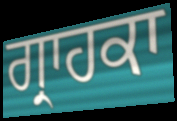
ਗ੍ਰਾਹਕਾ